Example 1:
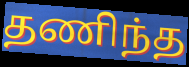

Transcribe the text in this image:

தணிந்த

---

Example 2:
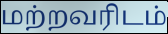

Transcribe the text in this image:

மற்றவரிடம்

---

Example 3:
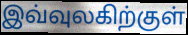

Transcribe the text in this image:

இவ்வுலகிற்குள்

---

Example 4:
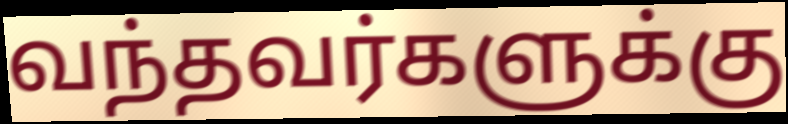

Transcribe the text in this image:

வந்தவர்களுக்கு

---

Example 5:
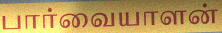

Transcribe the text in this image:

பார்வையாளன்